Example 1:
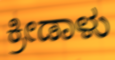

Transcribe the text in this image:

ಕ್ರೀಡಾಳು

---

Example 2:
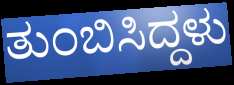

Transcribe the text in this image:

ತುಂಬಿಸಿದ್ದಳು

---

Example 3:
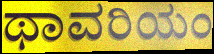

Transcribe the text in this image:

ಥಾವರಿಯಂ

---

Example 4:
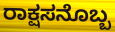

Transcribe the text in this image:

ರಾಕ್ಷಸನೊಬ್ಬ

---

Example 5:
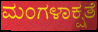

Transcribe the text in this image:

ಮಂಗಳಾಕ್ಷತೆ